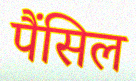
पैंसिल